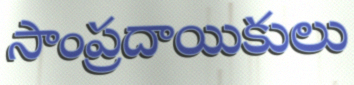
సాంప్రదాయికులు